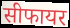
सीफायर